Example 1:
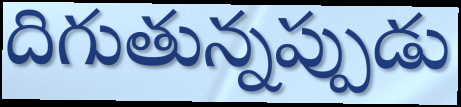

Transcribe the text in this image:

దిగుతున్నప్పుడు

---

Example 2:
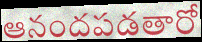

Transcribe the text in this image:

ఆనందపడతారో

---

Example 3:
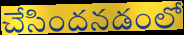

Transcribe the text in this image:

చేసిందనడంలో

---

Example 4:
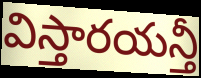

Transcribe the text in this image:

విస్తారయన్తీ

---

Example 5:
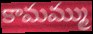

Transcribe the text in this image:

కామమ్ము